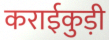
कराईकुड़ी